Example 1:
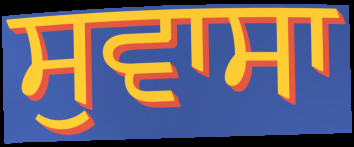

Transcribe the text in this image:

ਸੁਵਾਸਾ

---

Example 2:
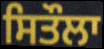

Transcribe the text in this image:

ਸਿਤੌਲਾ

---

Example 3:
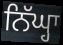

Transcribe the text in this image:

ਨਿੱਘ੍ਹਾ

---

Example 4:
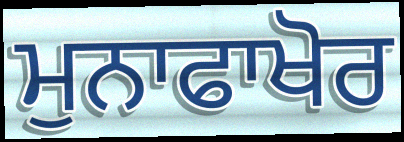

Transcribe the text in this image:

ਮੁਨਾਫਾਖੋਰ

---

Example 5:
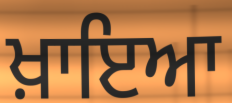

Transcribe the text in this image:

ਖ਼ਾਇਆ